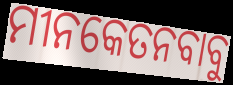
ମୀନକେତନବାବୁ